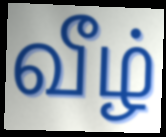
வீழ்